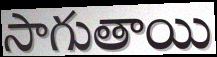
సాగుతాయి